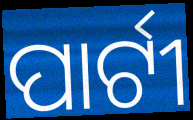
ପାର୍ଟୀ